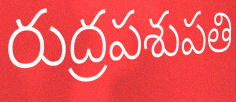
రుద్రపశుపతి